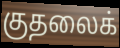
குதலைக்